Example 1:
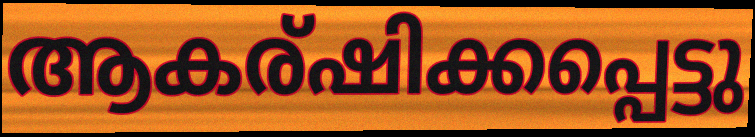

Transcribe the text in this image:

ആകര്ഷിക്കപ്പെട്ടു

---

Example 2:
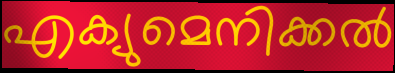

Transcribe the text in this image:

എക്യുമെനിക്കൽ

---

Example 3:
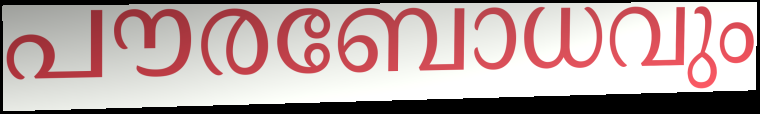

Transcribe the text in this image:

പൗരബോധവും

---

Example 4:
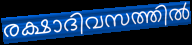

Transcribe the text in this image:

രക്ഷാദിവസത്തിൽ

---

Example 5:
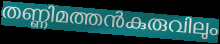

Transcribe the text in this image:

തണ്ണിമത്തൻകുരുവിലും